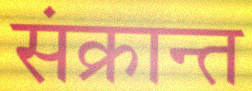
संक्रान्त